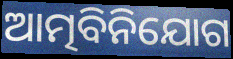
ଆତ୍ମବିନିଯୋଗ